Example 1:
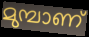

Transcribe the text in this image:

മുമ്പാണ്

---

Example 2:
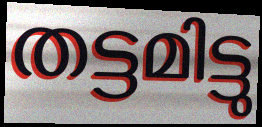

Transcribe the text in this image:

തട്ടമിട്ടു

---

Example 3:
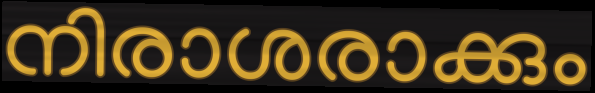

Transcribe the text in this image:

നിരാശരാക്കും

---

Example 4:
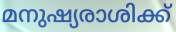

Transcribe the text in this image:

മനുഷ്യരാശിക്ക്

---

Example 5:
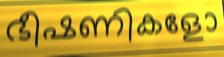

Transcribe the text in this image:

ഭീഷണികളോ